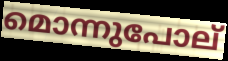
മൊന്നുപോല്